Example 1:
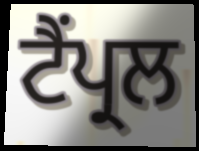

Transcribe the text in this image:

ਟੈਂਪ੍ਰਲ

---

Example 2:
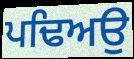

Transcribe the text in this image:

ਪਢਿਅਉ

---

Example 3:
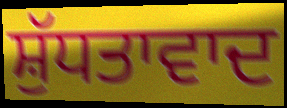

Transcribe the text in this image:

ਸ਼ੁੱਧਤਾਵਾਦ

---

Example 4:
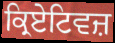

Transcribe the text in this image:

ਕ੍ਰਿਏਟਿਵਜ਼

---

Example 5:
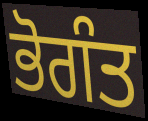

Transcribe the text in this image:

ਭੋਗੰਤ